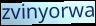
zvinyorwa